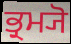
ਭ੍ਰਮ੍ਯੋ